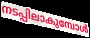
നടപ്പിലാകുമ്പോൾ